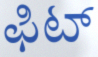
ಫಿಟ್